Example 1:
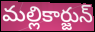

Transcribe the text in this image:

మల్లికార్జున్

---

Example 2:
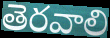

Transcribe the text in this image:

తెరవాలి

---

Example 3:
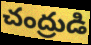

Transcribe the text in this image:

చంద్రుడి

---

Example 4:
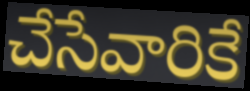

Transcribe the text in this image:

చేసేవారికే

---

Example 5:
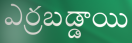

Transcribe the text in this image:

ఎర్రబడ్డాయి